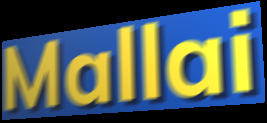
Mallai